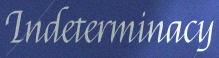
Indeterminacy